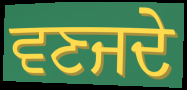
ਵਣਜਦੇ